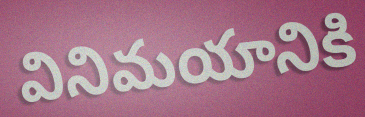
వినిమయానికి